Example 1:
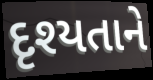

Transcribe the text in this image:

દૃશ્યતાને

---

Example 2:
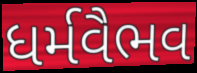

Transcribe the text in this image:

ધર્મવૈભવ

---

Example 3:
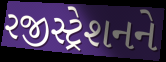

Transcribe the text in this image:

રજીસ્ટ્રેશનને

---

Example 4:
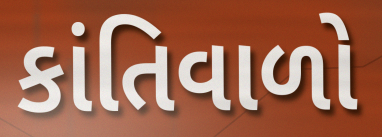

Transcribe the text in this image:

કાંતિવાળો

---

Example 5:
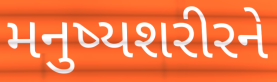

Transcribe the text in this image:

મનુષ્યશરીરને